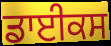
ਡਾਈਕਸ